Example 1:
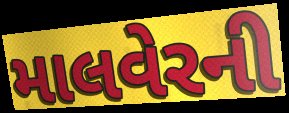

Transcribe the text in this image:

માલવેરની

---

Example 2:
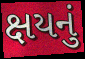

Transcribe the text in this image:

ક્ષયનું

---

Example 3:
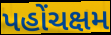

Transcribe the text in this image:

પહોંચક્ષમ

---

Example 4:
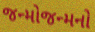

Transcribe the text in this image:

જન્મોજન્મનો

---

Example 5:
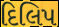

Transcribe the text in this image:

દિલિપ